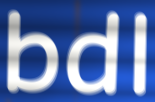
bdl